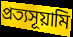
প্রত্যসূয়ামি